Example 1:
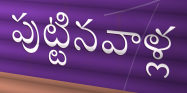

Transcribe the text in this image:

పుట్టినవాళ్ల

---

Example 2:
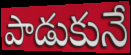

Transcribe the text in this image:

పాడుకునే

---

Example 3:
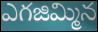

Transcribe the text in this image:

ఎగజిమ్మిన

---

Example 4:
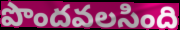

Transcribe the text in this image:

పొందవలసింది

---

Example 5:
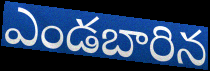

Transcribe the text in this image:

ఎండబారిన